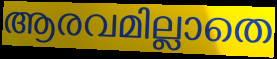
ആരവമില്ലാതെ